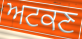
ਅਟਕਣ